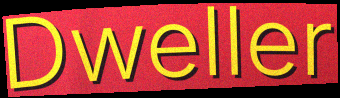
Dweller